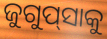
ଜୁଗୁପ୍‍ସାକୁ